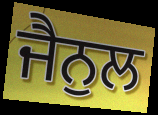
ਜੈਨੁਲ